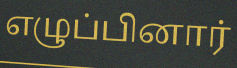
எழுப்பினார்